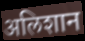
अलिशान